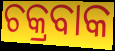
ଚକ୍ରବାକ